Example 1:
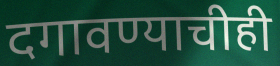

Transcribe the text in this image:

दगावण्याचीही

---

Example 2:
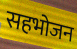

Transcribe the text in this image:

सहभोजन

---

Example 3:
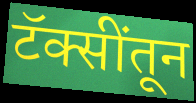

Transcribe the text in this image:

टॅक्सींतून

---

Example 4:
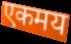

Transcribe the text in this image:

एकमय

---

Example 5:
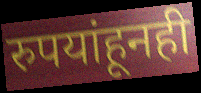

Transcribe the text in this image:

रुपयांहूनही